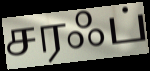
சரஃப்